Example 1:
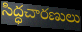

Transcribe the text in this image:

సిద్ధచారణులు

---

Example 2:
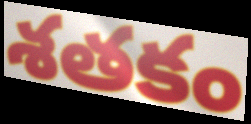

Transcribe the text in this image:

శతకం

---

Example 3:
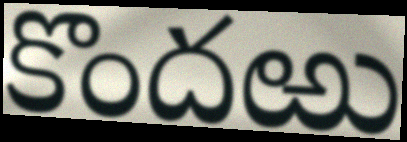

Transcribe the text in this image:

కొందఱు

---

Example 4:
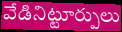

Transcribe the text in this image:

వేడినిట్టూర్పులు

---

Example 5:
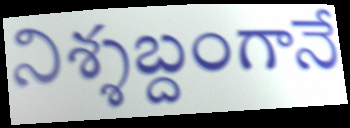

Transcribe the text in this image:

నిశ్శబ్దంగానే